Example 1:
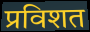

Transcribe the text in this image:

प्रविशत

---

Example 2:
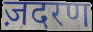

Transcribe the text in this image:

ज़दरण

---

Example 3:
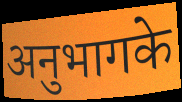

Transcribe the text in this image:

अनुभागके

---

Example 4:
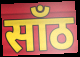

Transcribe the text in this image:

साँठ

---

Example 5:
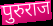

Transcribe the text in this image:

पुरुराज